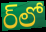
ర్‌లో